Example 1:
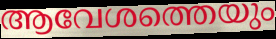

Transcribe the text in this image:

ആവേശത്തെയും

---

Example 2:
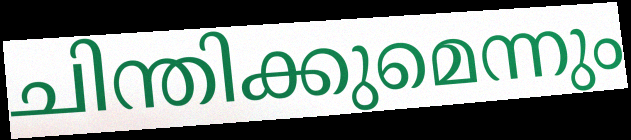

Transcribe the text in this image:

ചിന്തിക്കുമെന്നും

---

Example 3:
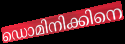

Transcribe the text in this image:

ഡൊമിനിക്കിനെ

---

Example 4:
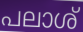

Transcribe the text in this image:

പലാശ്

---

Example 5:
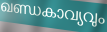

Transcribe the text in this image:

ഖണ്ഡകാവ്യവും